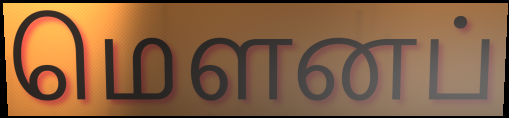
மெளனப்